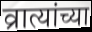
व्रात्यांच्या